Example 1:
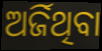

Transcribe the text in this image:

ଅର୍ଜିଥିବା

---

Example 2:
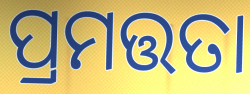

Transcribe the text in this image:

ପ୍ରମତ୍ତତା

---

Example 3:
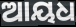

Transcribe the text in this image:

ଆୟଧ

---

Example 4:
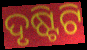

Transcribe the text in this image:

ଦୃଷ୍ଟିଟି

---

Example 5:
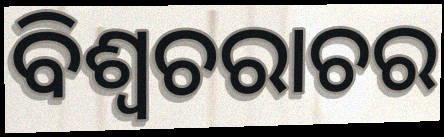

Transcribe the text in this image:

ବିଶ୍ଵଚରାଚର